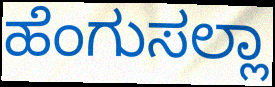
ಹೆಂಗುಸಲ್ಲಾ